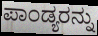
ಪಾಂಡ್ಯರನ್ನು